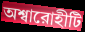
অশ্বারোহীটি